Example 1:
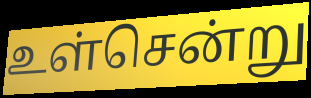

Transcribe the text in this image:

உள்சென்று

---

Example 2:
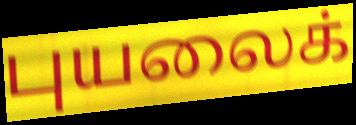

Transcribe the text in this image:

புயலைக்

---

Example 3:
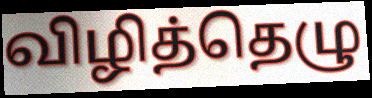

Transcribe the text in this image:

விழித்தெழு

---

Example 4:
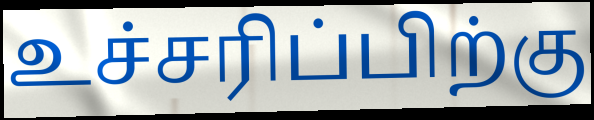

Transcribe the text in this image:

உச்சரிப்பிற்கு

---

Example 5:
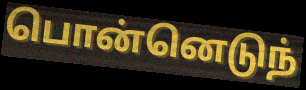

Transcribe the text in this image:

பொன்னெடுந்